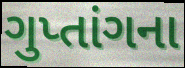
ગુપ્તાંગના